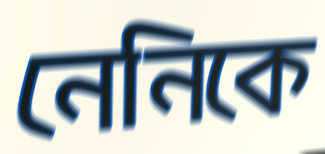
নেনিকে